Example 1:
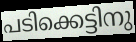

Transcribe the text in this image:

പടിക്കെട്ടിനു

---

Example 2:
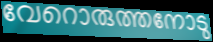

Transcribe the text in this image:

വേറൊരുത്തനോടു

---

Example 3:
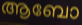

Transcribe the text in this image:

ആബോ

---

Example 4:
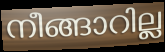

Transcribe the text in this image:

നീങ്ങാറില്ല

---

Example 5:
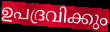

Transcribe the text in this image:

ഉപദ്രവിക്കും